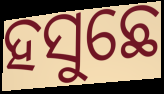
ହସୁଛେ